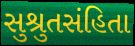
સુશ્રુતસંહિતા